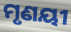
ମୃଣୟୀ